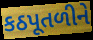
કઠપૂતળીને